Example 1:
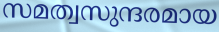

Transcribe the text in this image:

സമത്വസുന്ദരമായ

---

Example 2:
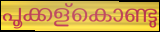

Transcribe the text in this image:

പൂക്കള്കൊണ്ടു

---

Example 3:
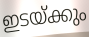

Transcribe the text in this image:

ഇടയ്ക്കും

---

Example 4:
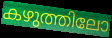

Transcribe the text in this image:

കഴുത്തിലോ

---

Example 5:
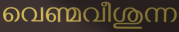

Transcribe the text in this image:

വെണ്മവീശുന്ന